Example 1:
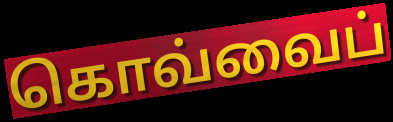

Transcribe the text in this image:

கொவ்வைப்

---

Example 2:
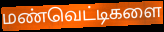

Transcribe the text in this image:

மண்வெட்டிகளை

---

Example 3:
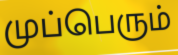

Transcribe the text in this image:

முப்பெரும்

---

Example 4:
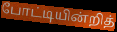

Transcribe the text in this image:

போட்டியின்றித்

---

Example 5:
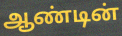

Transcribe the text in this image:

ஆண்டின்